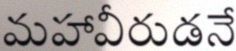
మహావీరుడనే